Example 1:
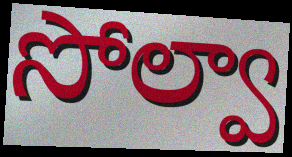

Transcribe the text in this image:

సోల్వా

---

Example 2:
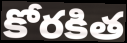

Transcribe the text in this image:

కోరకిత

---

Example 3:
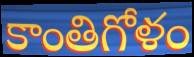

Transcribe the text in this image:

కాంతిగోళం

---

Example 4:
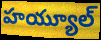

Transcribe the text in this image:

హయ్యూల్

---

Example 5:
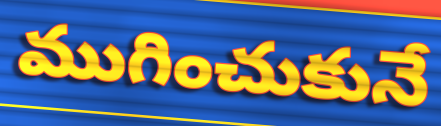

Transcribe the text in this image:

ముగించుకునే